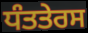
ਧੰਤਤੇਰਸ